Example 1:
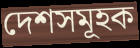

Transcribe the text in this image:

দেশসমূহক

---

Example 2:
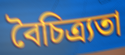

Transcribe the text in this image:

বৈচিত্ৰ্যতা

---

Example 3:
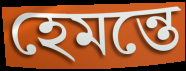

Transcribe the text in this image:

হেমন্তে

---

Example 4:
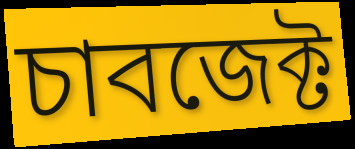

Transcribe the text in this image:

চাবজেক্ট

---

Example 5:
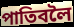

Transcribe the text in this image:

পাতিবলৈ